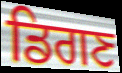
ਡਿਗਣ